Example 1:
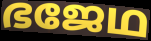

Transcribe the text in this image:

ഭജേഥ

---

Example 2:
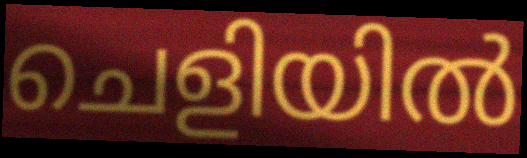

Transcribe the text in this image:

ചെളിയിൽ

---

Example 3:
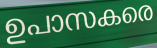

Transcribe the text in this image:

ഉപാസകരെ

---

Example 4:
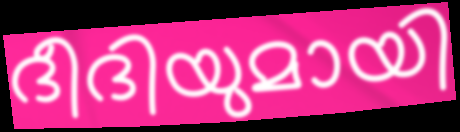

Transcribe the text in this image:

ദീദിയുമായി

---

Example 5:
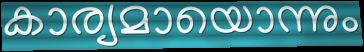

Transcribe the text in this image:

കാര്യമായൊന്നും